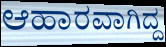
ಆಹಾರವಾಗಿದ್ದ